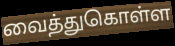
வைத்துகொள்ள